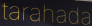
tarahada